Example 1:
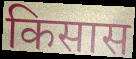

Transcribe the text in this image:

किसास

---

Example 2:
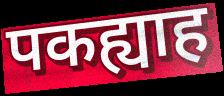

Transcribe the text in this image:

पकह्याह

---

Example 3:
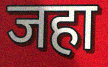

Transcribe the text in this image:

जहा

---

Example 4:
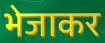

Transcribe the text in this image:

भेजाकर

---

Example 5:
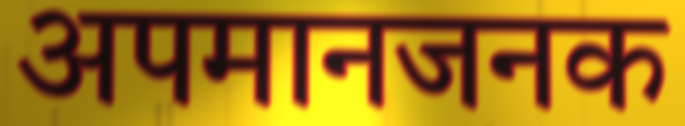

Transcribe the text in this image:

अपमानजनक